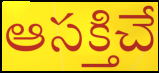
ఆసక్తిచే